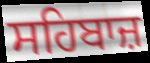
ਸਹਿਬਾਜ਼